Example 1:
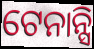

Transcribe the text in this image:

ଟେନାନ୍ସି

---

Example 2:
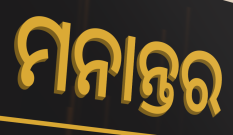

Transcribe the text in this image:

ମନାନ୍ତର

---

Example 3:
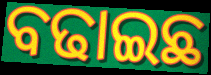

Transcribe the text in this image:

ବଢାଇଛ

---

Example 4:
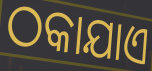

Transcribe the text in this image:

ଠକାଯାଏ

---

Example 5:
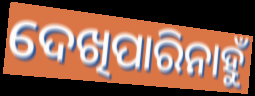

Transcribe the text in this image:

ଦେଖିପାରିନାହୁଁ